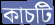
কাচটি